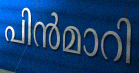
പിൻമാറി